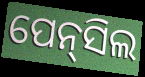
ପେନ୍‍ସିଲ